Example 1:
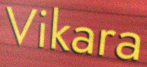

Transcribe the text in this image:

Vikara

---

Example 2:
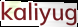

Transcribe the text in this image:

kaliyug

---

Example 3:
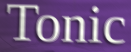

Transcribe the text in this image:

Tonic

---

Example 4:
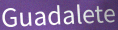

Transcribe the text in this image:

Guadalete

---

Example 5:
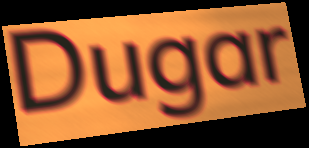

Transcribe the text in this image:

Dugar